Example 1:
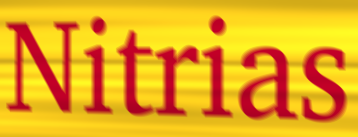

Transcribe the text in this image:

Nitrias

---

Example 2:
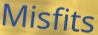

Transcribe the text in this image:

Misfits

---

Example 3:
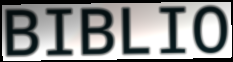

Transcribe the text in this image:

BIBLIO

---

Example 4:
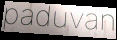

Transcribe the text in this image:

paduvan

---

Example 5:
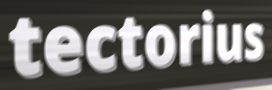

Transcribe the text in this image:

tectorius